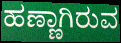
ಹಣ್ಣಾಗಿರುವ